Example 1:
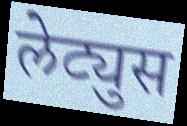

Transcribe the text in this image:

लेट्युस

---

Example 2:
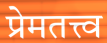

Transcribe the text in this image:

प्रेमतत्त्व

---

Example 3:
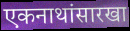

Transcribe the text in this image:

एकनाथांसारखा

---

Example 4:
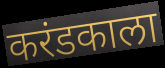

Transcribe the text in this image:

करंडकाला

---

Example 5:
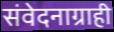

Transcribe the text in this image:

संवेदनाग्राही